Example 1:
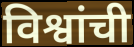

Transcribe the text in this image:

विश्वांची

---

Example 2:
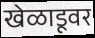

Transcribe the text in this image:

खेळाडूवर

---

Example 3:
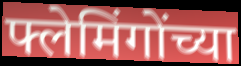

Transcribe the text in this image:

फ्लेमिंगोंच्या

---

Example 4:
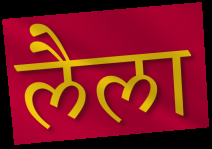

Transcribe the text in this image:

लैला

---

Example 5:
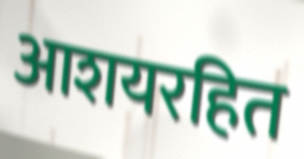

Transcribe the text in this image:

आशयरहित